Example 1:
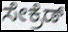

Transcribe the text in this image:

ಸೇಕ್ರೆಡ್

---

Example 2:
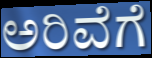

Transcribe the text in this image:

ಅರಿವೆಗೆ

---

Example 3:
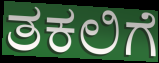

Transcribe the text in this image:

ತಕಲಿಗೆ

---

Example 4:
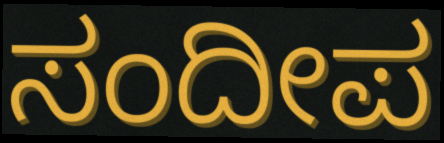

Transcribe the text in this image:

ಸಂದೀಪ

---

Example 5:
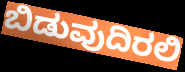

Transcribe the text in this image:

ಬಿಡುವುದಿರಲಿ